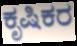
ಕೃಷಿಕರ